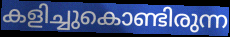
കളിച്ചുകൊണ്ടിരുന്ന